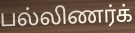
பல்லிணர்க்